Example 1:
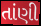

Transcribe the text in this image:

તાંણી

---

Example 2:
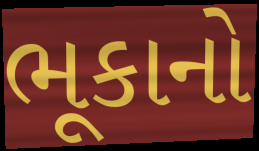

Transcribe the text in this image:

ભૂકાનો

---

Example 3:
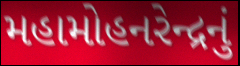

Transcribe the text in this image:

મહામોહનરેન્દ્રનું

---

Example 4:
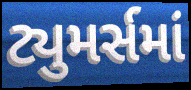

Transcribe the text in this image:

ટ્યુમર્સમાં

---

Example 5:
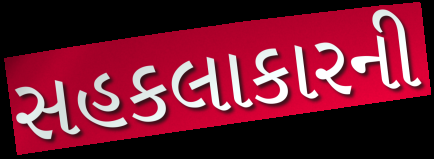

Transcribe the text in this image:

સહકલાકારની